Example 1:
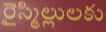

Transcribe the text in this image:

రైస్మిల్లులకు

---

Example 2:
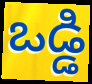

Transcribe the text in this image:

ఒడ్డి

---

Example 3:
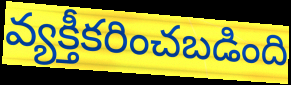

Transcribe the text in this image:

వ్యక్తీకరించబడింది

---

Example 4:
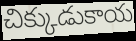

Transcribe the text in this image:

చిక్కుడుకాయ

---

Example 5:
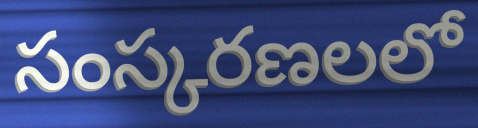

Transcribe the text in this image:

సంస్కరణలలో